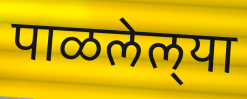
पाळलेल्या